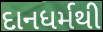
દાનધર્મથી